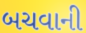
બચવાની